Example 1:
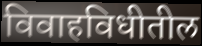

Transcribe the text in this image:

विवाहविधीतील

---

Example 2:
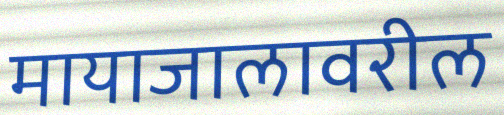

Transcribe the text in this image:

मायाजालावरील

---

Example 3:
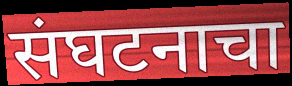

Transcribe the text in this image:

संघटनाचा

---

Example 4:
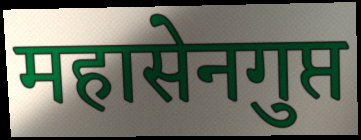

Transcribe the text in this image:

महासेनगुप्त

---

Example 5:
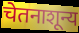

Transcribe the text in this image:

चेतनाशून्य